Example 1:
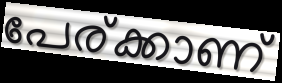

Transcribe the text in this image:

പേര്ക്കാണ്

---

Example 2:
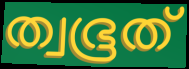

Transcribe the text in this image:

ത്വഭൂത്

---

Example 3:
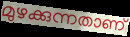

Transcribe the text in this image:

മുഴക്കുന്നതാണ്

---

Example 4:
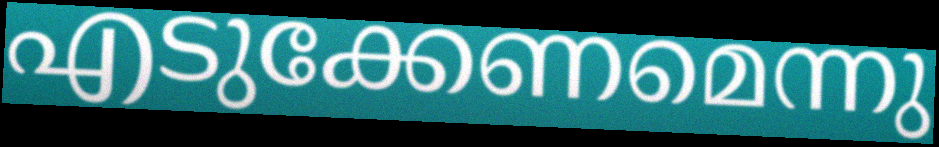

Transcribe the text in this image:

എടുക്കേണമെന്നു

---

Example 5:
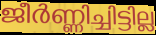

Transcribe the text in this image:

ജീർണ്ണിച്ചിട്ടില്ല